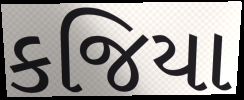
કજિયા